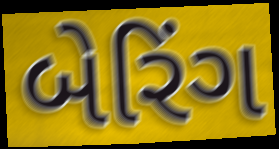
બેરિંગ